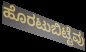
ಹೊರಟುಬಿಟ್ಟೆವು